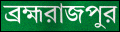
ব্রহ্মরাজপুর